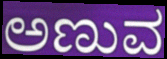
ಅಣುವ